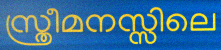
സ്ത്രീമനസ്സിലെ